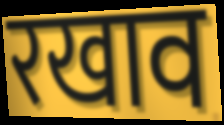
रखाव